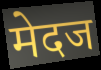
मेदज